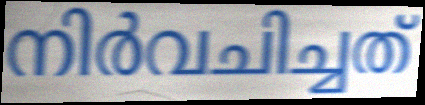
നിർവചിച്ചത്